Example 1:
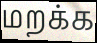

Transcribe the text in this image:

மறக்க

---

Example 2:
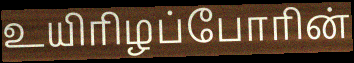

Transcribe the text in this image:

உயிரிழப்போரின்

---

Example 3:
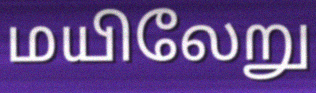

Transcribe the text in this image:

மயிலேறு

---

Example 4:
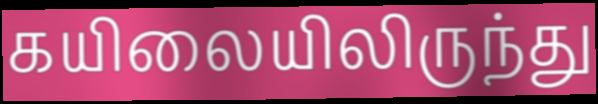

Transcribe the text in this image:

கயிலையிலிருந்து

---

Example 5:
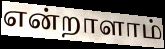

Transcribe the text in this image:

என்றாளாம்